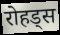
रोहड्स